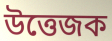
উত্তেজক